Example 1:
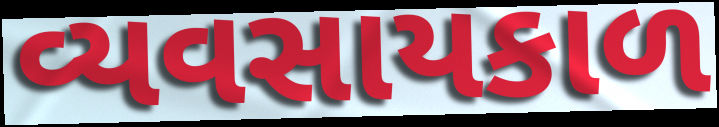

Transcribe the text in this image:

વ્યવસાયકાળ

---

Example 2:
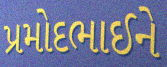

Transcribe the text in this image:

પ્રમોદભાઈને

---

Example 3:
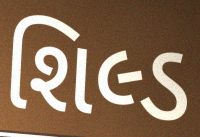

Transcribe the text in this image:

શિલ્ડ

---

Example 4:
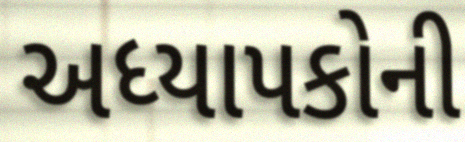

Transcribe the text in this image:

અધ્યાપકોની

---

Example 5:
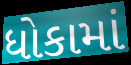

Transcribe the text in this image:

ધોકામાં